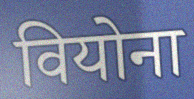
वियोना